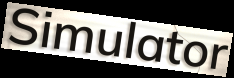
Simulator